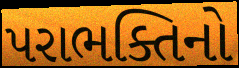
પરાભક્તિનો